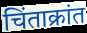
चिंताक्रांत